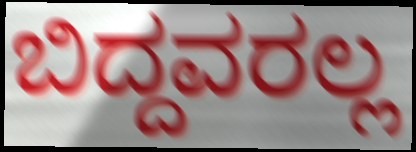
ಬಿದ್ದವರಲ್ಲ